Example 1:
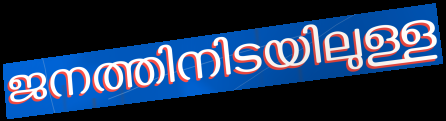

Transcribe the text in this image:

ജനത്തിനിടയിലുള്ള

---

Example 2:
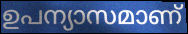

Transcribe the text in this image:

ഉപന്യാസമാണ്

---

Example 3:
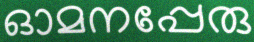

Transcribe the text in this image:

ഓമനപ്പേരു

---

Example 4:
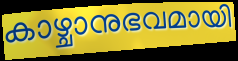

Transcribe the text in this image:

കാഴ്ചാനുഭവമായി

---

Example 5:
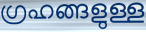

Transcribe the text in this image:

ഗ്രഹങ്ങളുള്ള